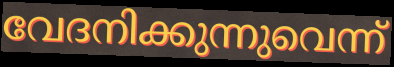
വേദനിക്കുന്നുവെന്ന്